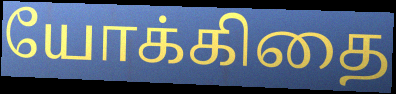
யோக்கிதை